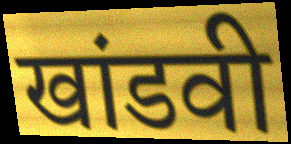
खांडवी